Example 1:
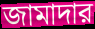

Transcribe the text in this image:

জামাদার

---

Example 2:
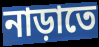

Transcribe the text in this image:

নাড়াতে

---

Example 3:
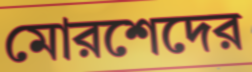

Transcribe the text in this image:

মোরশেদের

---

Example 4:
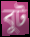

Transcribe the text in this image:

বুট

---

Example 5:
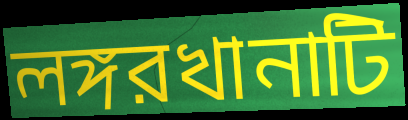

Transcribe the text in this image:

লঙ্গরখানাটি